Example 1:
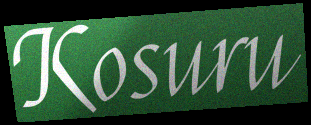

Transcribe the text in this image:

Kosuru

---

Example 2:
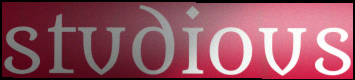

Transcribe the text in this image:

studious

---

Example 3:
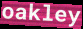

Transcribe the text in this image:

oakley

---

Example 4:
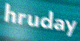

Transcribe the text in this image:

hruday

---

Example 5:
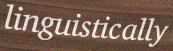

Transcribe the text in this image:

linguistically